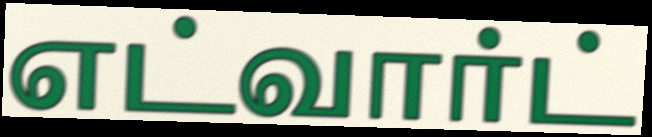
எட்வார்ட்